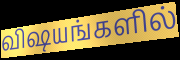
விஷயங்களில்